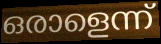
ഒരാളെന്ന്